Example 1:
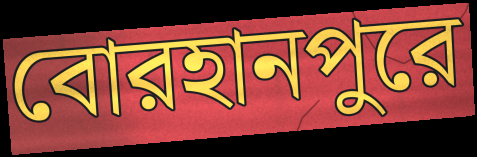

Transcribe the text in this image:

বোরহানপুরে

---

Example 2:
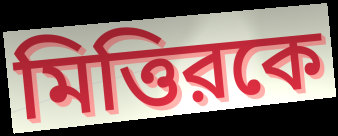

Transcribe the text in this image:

মিত্তিরকে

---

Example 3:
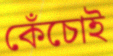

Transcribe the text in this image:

কেঁচোই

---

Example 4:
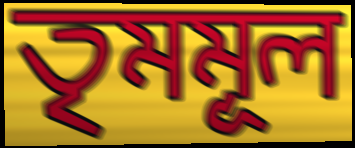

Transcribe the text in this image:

তৃমমূল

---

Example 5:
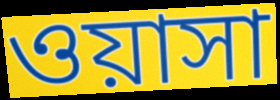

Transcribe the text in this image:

ওয়াসা